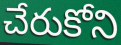
చేరుకోని